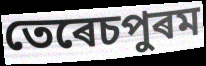
তেৰেচপুৰম